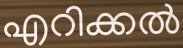
എറിക്കൽ